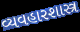
વ્યવહારશાસ્ત્ર